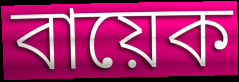
বায়েক